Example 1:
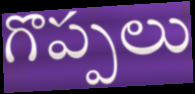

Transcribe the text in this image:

గొప్పలు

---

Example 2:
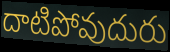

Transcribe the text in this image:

దాటిపోవుదురు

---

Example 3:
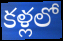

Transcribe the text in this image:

కళ్లలో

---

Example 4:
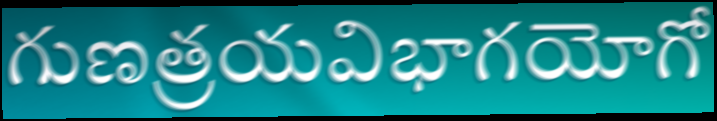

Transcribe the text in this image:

గుణత్రయవిభాగయోగో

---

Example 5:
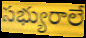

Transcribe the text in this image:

సభ్యురాలే